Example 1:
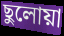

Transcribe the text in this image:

ছুলোয়া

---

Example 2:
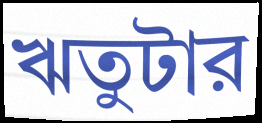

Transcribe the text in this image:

ঋতুটার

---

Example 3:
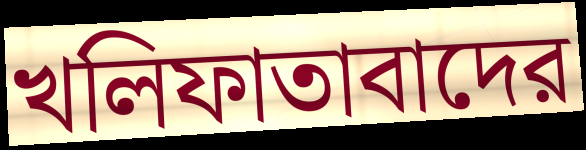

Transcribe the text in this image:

খলিফাতাবাদের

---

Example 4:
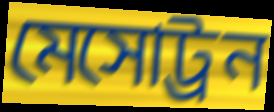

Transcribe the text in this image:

মেসোট্রন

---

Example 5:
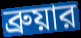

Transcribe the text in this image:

ব্রুয়ার